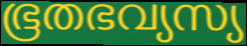
ഭൂതഭവ്യസ്യ